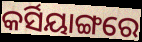
କର୍ସିୟାଙ୍ଗରେ